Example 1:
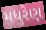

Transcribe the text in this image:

મધુરેણ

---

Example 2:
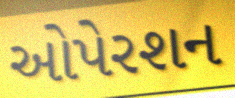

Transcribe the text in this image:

ઓપેરશન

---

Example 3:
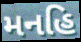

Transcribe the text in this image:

મનહિ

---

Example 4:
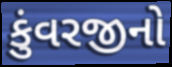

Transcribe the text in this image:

કુંવરજીનો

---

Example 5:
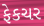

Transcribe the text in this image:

ફેકચર